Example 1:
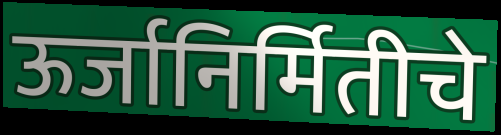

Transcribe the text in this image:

ऊर्जानिर्मितीचे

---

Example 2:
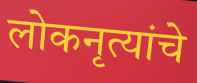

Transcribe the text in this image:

लोकनृत्यांचे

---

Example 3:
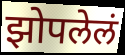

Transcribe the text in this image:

झोपलेलं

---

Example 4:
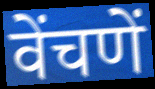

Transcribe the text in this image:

वेंचणें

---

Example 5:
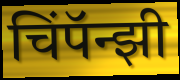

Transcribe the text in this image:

चिंपॅन्झी